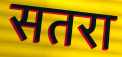
सतरा